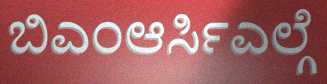
ಬಿಎಂಆರ್ಸಿಎಲ್ಗೆ